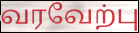
வரவேற்பு